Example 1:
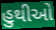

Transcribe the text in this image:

હુથીઓ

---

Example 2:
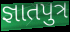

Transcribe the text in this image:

જ્ઞાતપુત્ર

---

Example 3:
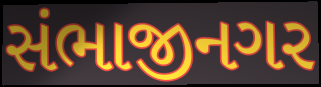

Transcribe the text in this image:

સંભાજીનગર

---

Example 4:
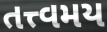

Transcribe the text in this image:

તત્ત્વમય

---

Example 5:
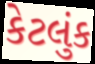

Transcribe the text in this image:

કેટલુંક